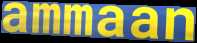
ammaan